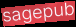
sagepub